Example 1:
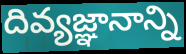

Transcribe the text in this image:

దివ్యజ్ఞానాన్ని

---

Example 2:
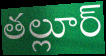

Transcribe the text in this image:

తల్లూర్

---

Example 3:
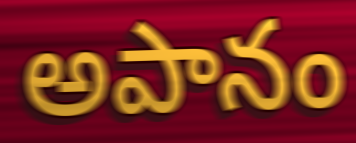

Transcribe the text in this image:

అపానం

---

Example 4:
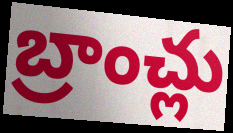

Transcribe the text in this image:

బ్రాంచ్లు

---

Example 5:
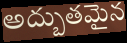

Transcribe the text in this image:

అద్బుతమైన